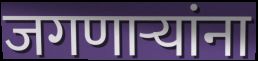
जगणाऱ्यांना